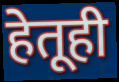
हेतूही